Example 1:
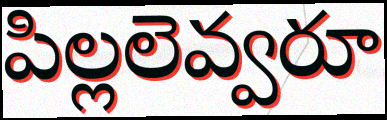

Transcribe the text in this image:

పిల్లలెవ్వరూ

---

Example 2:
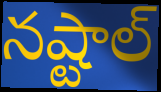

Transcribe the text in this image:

నష్టాల్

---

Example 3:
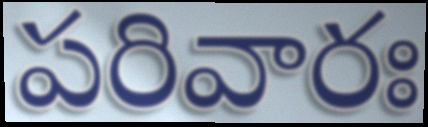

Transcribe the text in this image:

పరివారః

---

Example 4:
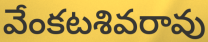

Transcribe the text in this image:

వేంకటశివరావు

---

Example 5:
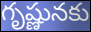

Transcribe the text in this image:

గృష్ణునకు